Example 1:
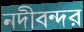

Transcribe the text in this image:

নদীবন্দর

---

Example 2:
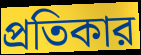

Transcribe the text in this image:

প্রতিকার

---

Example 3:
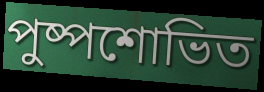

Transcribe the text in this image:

পুষ্পশোভিত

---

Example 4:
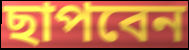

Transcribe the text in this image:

ছাপবেন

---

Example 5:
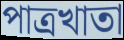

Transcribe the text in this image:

পাত্রখাতা